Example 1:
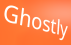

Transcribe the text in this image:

Ghostly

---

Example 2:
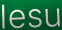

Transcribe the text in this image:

Iesu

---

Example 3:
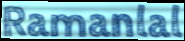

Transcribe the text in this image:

Ramanlal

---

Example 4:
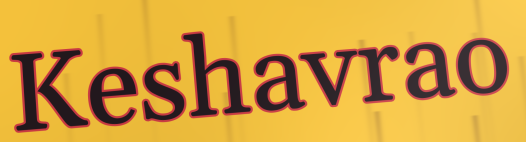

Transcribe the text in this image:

Keshavrao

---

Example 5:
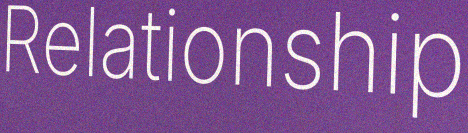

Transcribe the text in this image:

Relationship